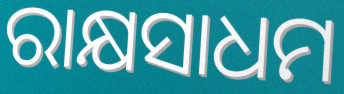
ରାକ୍ଷସାଧମ